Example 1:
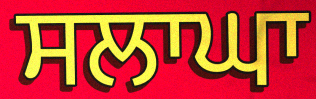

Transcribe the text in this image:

ਸਲਾਘਾ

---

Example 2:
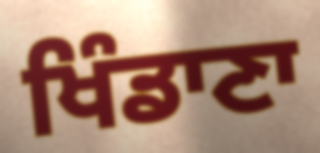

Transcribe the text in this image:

ਖਿੰਡਾਣਾ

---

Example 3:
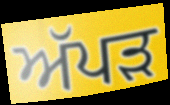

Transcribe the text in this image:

ਅੱਪੜ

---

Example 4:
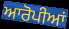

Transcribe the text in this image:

ਆਰੋਪੀਆਂ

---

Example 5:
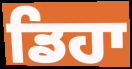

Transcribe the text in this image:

ਡਿਹਾ